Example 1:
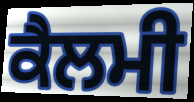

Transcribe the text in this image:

ਕੈਲਮੀ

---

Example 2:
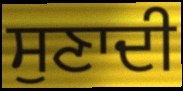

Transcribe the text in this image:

ਸੁਣਾਦੀ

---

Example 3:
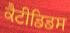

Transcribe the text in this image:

ਕੈਟੀਡਿਡਸ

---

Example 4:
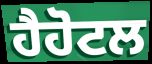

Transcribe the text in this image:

ਹੈਹੋਟਲ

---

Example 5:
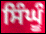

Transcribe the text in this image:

ਸਿੰਘੂੰ